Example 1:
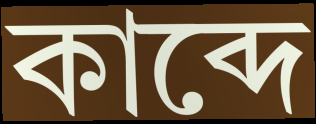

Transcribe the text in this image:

কাব্দে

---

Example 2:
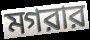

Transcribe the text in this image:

মগরার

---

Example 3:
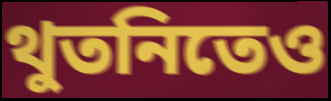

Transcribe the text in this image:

থুতনিতেও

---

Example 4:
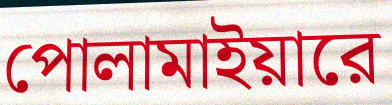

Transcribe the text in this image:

পোলামাইয়ারে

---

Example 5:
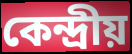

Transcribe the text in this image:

কেন্দ্রীয়